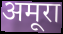
अमूरा